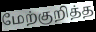
மேற்குறித்த